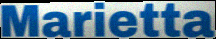
Marietta